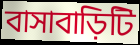
বাসাবাড়িটি